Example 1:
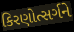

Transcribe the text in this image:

કિરણોત્સર્ગને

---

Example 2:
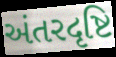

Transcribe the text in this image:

અંતરદૃષ્ટિ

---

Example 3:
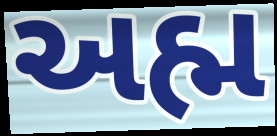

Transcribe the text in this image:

અહ્મ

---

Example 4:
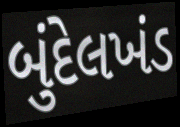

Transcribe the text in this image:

બુંદેલખંડ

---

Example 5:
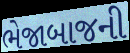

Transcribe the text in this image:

ભેજાબાજની